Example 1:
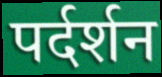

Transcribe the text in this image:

पर्दर्शन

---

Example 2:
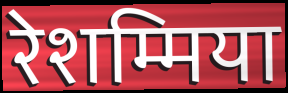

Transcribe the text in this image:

रेशम्मिया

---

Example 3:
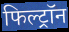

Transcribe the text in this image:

फिल्ट्रॉन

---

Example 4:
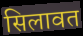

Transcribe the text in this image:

सिलावत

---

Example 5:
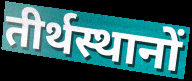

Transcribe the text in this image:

तीर्थस्थानों